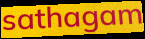
sathagam